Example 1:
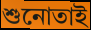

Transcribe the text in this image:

শুনোতাই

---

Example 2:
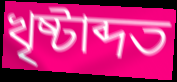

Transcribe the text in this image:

খৃষ্টাব্দত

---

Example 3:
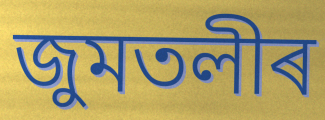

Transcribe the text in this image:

জুমতলীৰ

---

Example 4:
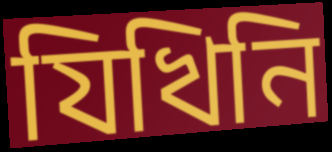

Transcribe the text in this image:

যিখিনি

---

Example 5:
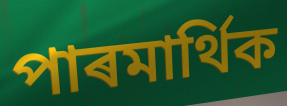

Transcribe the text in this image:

পাৰমাৰ্থিক